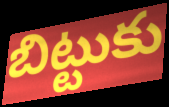
బిట్టుకు